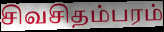
சிவசிதம்பரம்